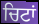
ਚਿਟਾਂ